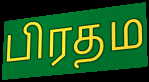
பிரதம